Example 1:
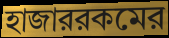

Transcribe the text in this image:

হাজাররকমের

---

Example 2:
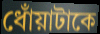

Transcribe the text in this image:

ধোঁয়াটাকে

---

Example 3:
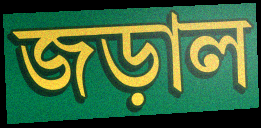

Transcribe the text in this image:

জড়াল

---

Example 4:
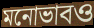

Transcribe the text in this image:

মনোভাবও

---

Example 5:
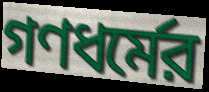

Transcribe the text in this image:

গণধর্মের